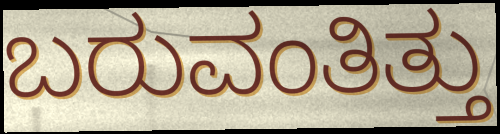
ಬರುವಂತಿತ್ತು